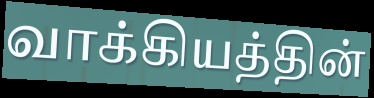
வாக்கியத்தின்